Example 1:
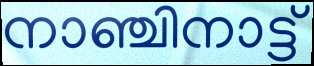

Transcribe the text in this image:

നാഞ്ചിനാട്ട്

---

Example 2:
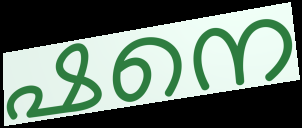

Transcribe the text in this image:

ഷനെ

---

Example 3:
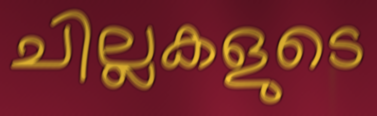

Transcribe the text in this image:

ചില്ലകളുടെ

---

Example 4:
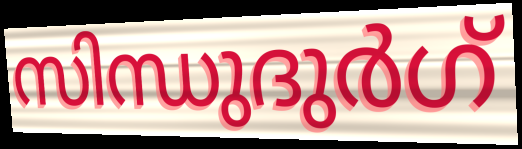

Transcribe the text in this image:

സിന്ധുദുർഗ്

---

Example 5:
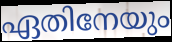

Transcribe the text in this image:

ഏതിനേയും